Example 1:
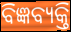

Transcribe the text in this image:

ବିଜ୍ଞବ୍ୟକ୍ତି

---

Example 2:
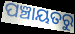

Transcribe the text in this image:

ପଞ୍ଚାୟତରୁ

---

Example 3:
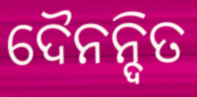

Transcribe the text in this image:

ଦୈନନ୍ଦିତ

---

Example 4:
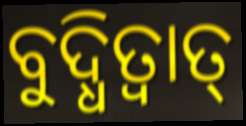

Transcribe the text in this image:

ବୁଦ୍ଧିତ୍ୱାତ୍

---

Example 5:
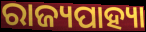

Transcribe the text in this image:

ରାଜ୍ୟପାହ୍ୟା